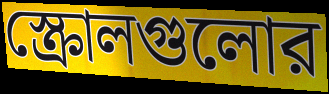
স্ক্রোলগুলোর